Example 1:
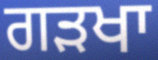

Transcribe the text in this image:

ਗੜਖਾ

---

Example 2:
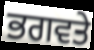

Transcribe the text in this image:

ਭਗਵਤੇ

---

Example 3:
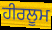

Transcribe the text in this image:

ਹੀਰਲੂਮ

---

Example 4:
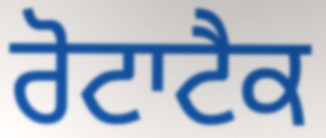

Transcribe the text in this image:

ਰੋਟਾਟੈਕ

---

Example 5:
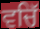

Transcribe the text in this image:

ਵਚਿੱ